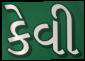
કેવી